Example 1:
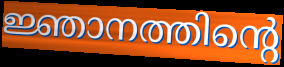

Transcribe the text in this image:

ജ്ഞാനത്തിന്റെ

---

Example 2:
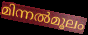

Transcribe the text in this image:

മിന്നൽമൂലം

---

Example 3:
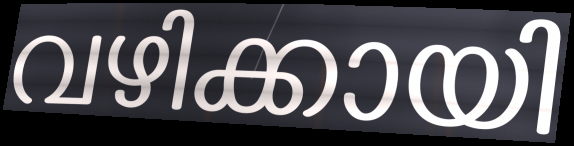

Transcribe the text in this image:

വഴിക്കായി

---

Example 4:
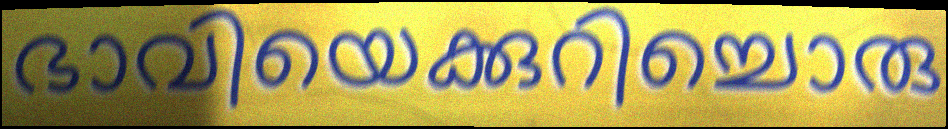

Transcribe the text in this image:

ഭാവിയെക്കുറിച്ചൊരു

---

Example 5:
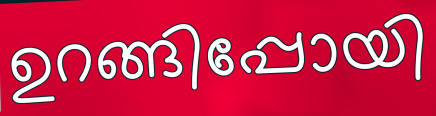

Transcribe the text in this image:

ഉറങ്ങിപ്പോയി